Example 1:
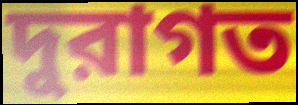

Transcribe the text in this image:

দুরাগত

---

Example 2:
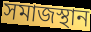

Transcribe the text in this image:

সমাজস্থান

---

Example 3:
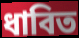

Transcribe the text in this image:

ধাবিত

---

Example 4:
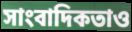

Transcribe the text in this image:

সাংবাদিকতাও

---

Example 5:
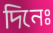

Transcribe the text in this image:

দিনেঃ